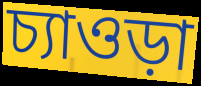
চ্যাওড়া